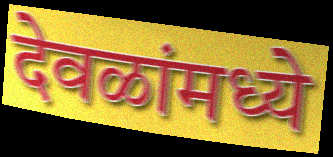
देवळांमध्ये